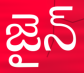
జైన్